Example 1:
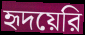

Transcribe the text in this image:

হৃদয়েরি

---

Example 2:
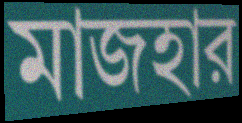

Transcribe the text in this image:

মাজহার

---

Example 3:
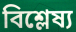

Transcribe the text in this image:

বিশ্লেষ্য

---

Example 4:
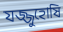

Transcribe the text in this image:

যজ্জুহোষি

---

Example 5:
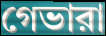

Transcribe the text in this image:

গেভারা